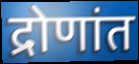
द्रोणांत